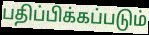
பதிப்பிக்கப்படும்